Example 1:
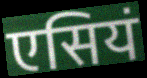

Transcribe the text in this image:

एसियं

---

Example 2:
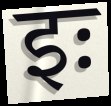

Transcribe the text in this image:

इः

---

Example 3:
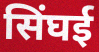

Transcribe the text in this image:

सिंघई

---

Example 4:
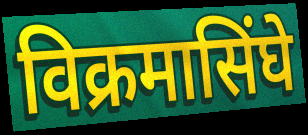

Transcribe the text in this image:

विक्रमासिंघे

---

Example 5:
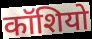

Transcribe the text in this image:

कॉशियो